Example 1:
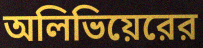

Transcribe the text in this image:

অলিভিয়েরের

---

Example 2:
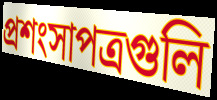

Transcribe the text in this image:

প্রশংসাপত্রগুলি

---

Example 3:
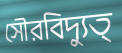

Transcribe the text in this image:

সৌরবিদ্যুত্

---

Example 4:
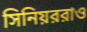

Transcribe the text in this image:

সিনিয়ররাও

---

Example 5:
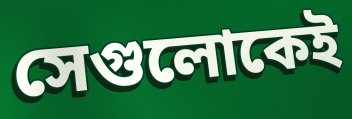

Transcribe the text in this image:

সেগুলোকেই